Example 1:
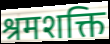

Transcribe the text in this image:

श्रमशक्ति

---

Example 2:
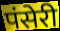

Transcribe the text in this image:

पंसेरी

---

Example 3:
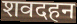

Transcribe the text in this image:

शवदहन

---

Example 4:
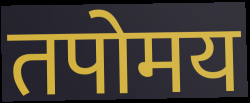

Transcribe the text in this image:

तपोमय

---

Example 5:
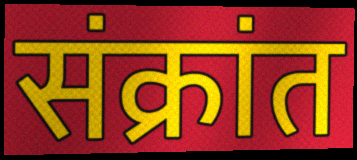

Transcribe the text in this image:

संक्रांत